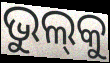
ଭୁଲ୍‍କୁ